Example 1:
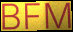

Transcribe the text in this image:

BFM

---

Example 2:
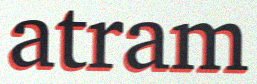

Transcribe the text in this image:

atram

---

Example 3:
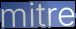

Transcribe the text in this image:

mitre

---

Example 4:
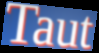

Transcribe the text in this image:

Taut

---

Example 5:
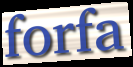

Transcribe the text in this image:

forfa